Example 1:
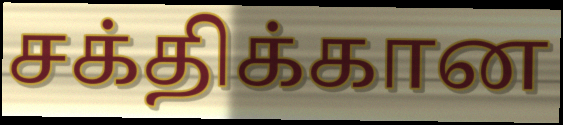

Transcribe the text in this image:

சக்திக்கான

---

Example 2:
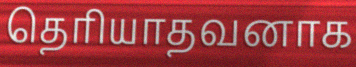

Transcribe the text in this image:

தெரியாதவனாக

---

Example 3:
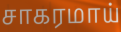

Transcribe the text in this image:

சாகரமாய்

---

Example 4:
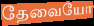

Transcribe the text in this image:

தேவையோ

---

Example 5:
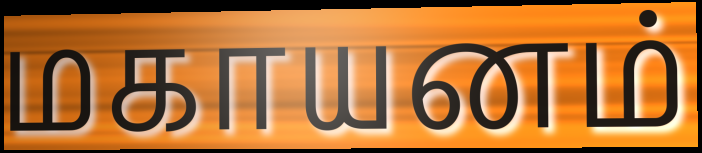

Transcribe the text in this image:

மகாயனம்